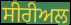
ਸੀਰੀਅਲ